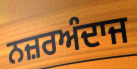
ਨਜ਼ਰਅੰਦਾਜ